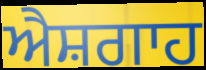
ਐਸ਼ਗਾਹ